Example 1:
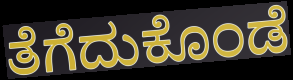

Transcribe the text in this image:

ತೆಗೆದುಕೊಂಡೆ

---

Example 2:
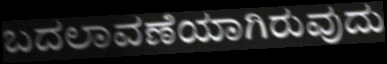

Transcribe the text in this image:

ಬದಲಾವಣೆಯಾಗಿರುವುದು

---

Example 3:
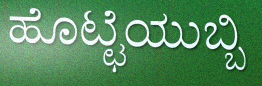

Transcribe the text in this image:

ಹೊಟ್ಟೆಯುಬ್ಬಿ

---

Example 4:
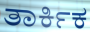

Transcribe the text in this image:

ತಾರ್ಕಿಕ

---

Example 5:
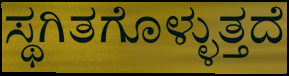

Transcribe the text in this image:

ಸ್ಥಗಿತಗೊಳ್ಳುತ್ತದೆ